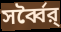
সর্ব্বৈর্